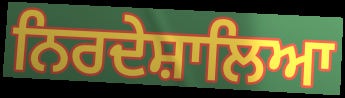
ਨਿਰਦੇਸ਼ਾਲਿਆ